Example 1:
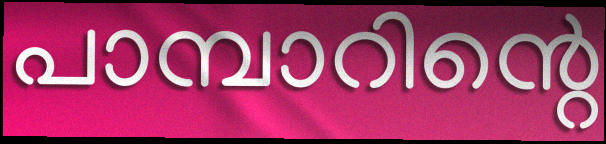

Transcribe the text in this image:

പാമ്പാറിന്റെ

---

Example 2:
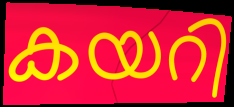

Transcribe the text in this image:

കയറി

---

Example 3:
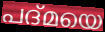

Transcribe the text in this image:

പദ്മയെ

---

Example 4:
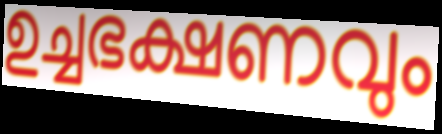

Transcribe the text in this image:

ഉച്ചഭക്ഷണവും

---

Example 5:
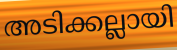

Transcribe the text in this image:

അടിക്കല്ലായി